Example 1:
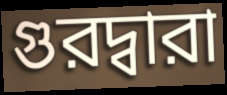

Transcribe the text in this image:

গুরদ্বারা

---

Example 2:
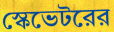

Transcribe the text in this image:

স্কেভেটরের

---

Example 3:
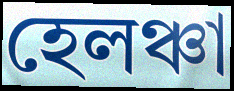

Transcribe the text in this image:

হেলঞ্চা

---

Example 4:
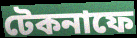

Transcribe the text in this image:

টেকনাফে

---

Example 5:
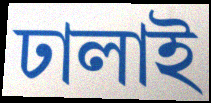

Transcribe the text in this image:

ঢালাই